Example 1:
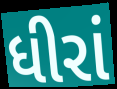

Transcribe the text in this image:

ધીરાં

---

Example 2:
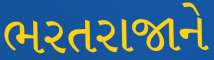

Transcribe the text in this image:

ભરતરાજાને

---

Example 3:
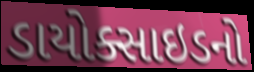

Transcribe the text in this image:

ડાયોક્સાઇડનો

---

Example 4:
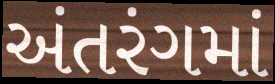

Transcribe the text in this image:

અંતરંગમાં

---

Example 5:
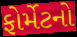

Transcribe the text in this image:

ફોર્મેટનો